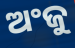
ଅଂଜୁ